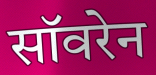
सॉवरेन